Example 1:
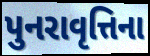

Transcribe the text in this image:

પુનરાવૃત્તિના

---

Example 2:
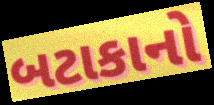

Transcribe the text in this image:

બટાકાનો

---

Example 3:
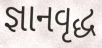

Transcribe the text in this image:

જ્ઞાનવૃદ્ધ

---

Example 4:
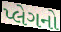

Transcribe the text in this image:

પ્લેગનો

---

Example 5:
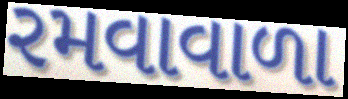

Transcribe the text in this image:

રમવાવાળા